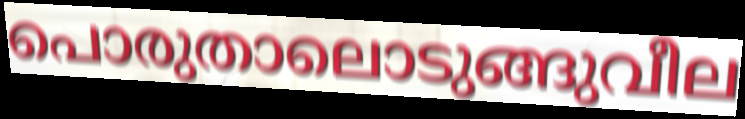
പൊരുതാലൊടുങ്ങുവീല